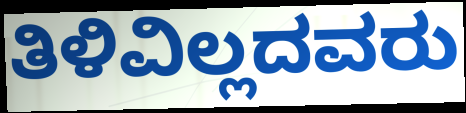
ತಿಳಿವಿಲ್ಲದವರು